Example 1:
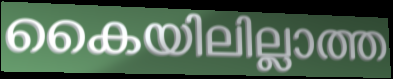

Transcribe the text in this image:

കൈയിലില്ലാത്ത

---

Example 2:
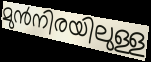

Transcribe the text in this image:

മുൻനിരയിലുള്ള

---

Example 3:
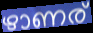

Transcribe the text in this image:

ഴാണര്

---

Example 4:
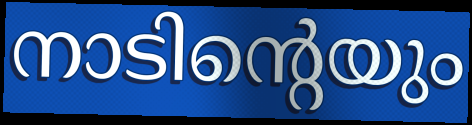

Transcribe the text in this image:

നാടിന്റെയും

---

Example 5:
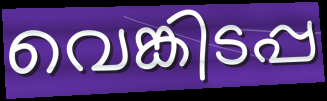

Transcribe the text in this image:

വെങ്കിടപ്പ